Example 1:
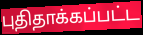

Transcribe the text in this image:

புதிதாக்கப்பட்ட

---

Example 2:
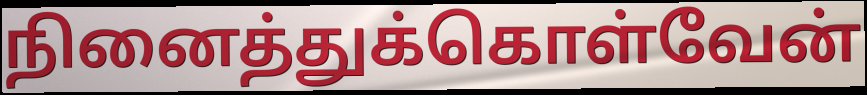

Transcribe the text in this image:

நினைத்துக்கொள்வேன்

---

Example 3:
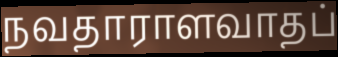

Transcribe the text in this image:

நவதாராளவாதப்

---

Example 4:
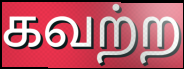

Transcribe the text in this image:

கவற்ற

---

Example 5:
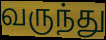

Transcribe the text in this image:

வருந்து